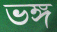
ভঙ্গ